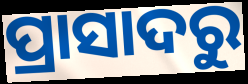
ପ୍ରାସାଦରୁ